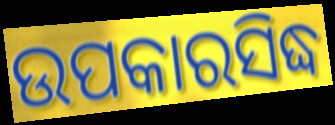
ଉପକାରସିଦ୍ଧ